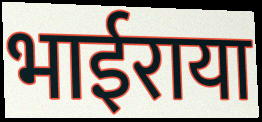
भाईराया